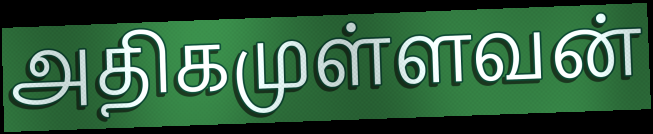
அதிகமுள்ளவன்